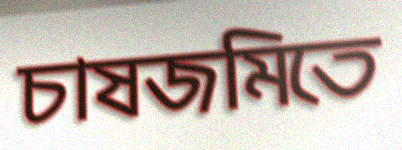
চাষজমিতে